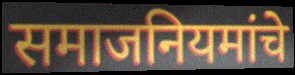
समाजनियमांचे